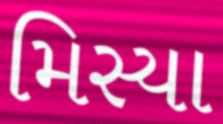
મિસ્યા